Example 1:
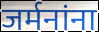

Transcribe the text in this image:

जर्मनांना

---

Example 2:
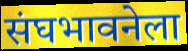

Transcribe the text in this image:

संघभावनेला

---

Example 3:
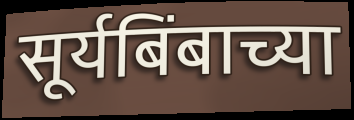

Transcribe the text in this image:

सूर्यबिंबाच्या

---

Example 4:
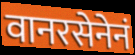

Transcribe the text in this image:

वानरसेनेनं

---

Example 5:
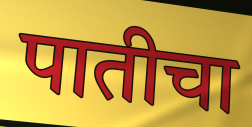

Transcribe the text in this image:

पातीचा